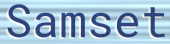
Samset